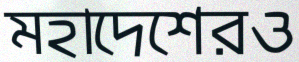
মহাদেশেরও